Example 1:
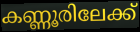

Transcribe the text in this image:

കണ്ണൂരിലേക്ക്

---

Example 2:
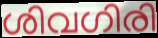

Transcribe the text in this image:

ശിവഗിരി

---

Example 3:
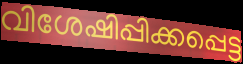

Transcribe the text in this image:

വിശേഷിപ്പിക്കപ്പെട്ട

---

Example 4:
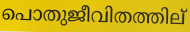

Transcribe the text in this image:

പൊതുജീവിതത്തില്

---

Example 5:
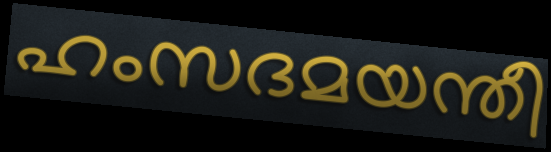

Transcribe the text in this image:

ഹംസദമയന്തീ